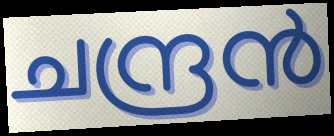
ചന്ദ്രൻ